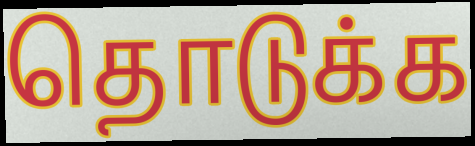
தொடுக்க